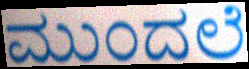
ಮುಂದಲೆ